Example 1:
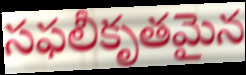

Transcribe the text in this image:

సఫలీకృతమైన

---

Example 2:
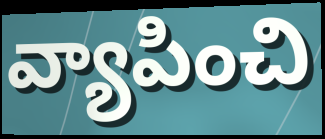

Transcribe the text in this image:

వ్యాపించి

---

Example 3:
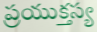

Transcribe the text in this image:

ప్రయుక్తస్య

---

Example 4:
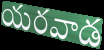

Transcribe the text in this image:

యరవాడ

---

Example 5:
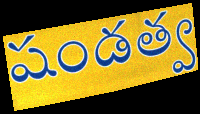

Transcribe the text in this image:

షండత్వ